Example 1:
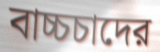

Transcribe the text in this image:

বাচ্চচাদের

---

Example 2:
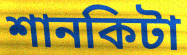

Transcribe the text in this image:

শানকিটা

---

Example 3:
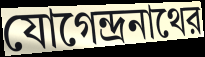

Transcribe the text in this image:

যোগেন্দ্রনাথের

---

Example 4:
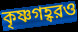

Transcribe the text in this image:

কৃষ্ণগহ্বরও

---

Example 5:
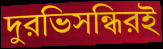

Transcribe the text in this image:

দুরভিসন্ধিরই